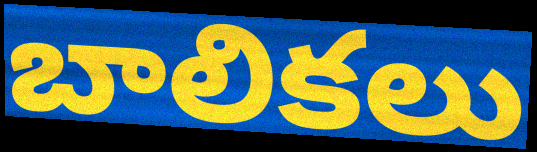
బాలికలు